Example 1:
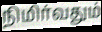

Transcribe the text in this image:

நிமிர்வதும்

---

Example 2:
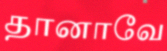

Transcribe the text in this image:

தானாவே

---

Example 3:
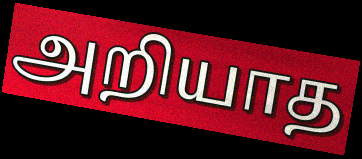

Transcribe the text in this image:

அறியாத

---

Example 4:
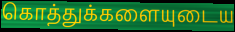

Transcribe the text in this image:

கொத்துக்களையுடைய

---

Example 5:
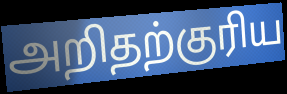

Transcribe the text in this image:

அறிதற்குரிய